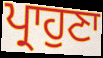
ਪ੍ਰਾਹੁਣਾ